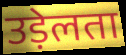
उड़ेलता